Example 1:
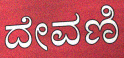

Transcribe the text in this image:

ದೇವಣಿ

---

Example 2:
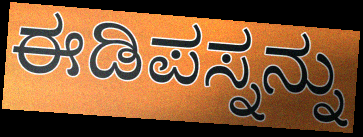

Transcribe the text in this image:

ಈಡಿಪಸ್ನನ್ನು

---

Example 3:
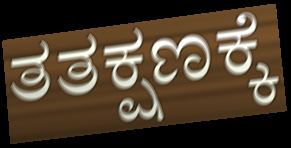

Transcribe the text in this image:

ತತಕ್ಷಣಕ್ಕೆ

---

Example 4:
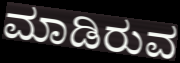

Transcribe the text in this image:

ಮಾಡಿರುವ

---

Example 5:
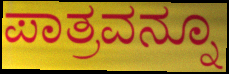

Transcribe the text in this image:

ಪಾತ್ರವನ್ನೂ